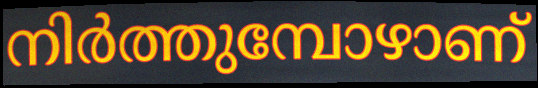
നിർത്തുമ്പോഴാണ്